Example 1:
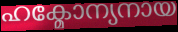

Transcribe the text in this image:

ഹക്മോന്യനായ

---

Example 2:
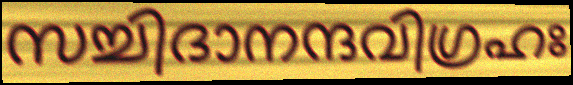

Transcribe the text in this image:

സച്ചിദാനന്ദവിഗ്രഹഃ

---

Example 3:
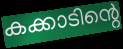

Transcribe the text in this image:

കക്കാടിന്റെ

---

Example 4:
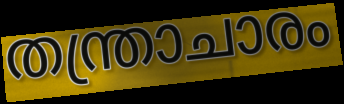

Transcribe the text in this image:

തന്ത്രാചാരം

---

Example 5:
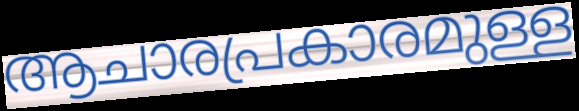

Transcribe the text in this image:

ആചാരപ്രകാരമുള്ള